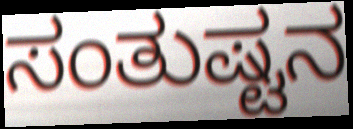
ಸಂತುಷ್ಟನ